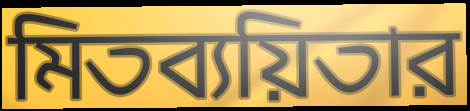
মিতব্যয়িতার